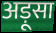
अड़ूसा